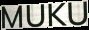
MUKU